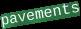
pavements